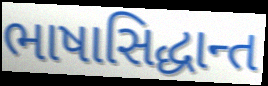
ભાષાસિદ્ધાન્ત